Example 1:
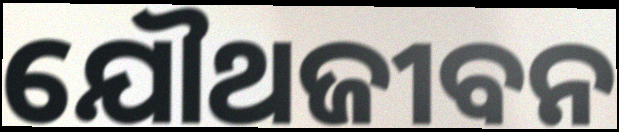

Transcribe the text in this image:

ଯୌଥଜୀବନ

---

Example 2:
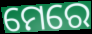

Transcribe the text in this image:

ମେରେ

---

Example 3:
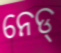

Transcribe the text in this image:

ନେଡ୍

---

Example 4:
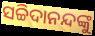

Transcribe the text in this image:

ସଚ୍ଚିଦାନନ୍ଦଙ୍କୁ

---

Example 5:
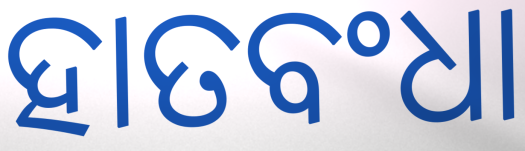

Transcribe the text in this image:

ହାତବଂଧା